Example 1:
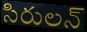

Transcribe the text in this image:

సిరులన్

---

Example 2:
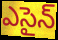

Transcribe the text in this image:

ఎసైన్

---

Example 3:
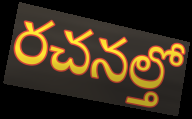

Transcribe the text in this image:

రచనల్తో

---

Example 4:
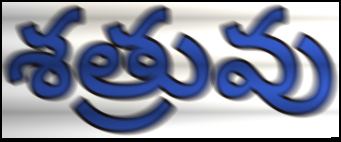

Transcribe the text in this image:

శత్రువు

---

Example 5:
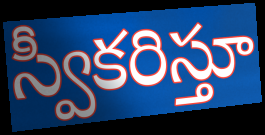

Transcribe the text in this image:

స్వీకరిస్తూ